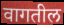
वागतील